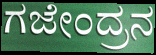
ಗಜೇಂದ್ರನ